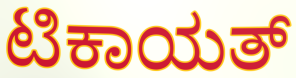
ಟಿಕಾಯತ್